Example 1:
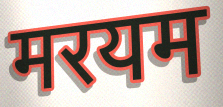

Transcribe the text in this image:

मरयम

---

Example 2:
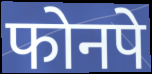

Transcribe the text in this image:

फोनपे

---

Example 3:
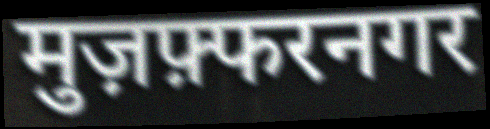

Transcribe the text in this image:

मुज़फ़्फरनगर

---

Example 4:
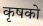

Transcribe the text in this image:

कृषको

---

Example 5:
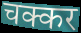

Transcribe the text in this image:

चक्‍कर